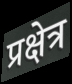
प्रक्षेत्र